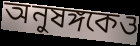
অনুষঙ্গকেও